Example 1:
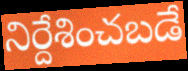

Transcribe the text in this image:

నిర్దేశించబడే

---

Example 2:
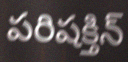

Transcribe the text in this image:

పరిషక్తిన్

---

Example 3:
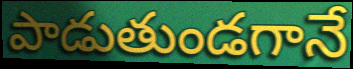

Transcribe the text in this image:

పాడుతుండగానే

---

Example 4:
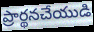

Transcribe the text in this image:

ప్రార్థనచేయుడి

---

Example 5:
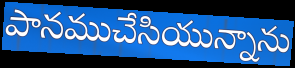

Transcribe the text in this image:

పానముచేసియున్నాను